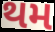
થમ